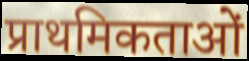
प्राथमिकताओं